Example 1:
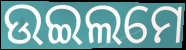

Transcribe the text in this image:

ଉଇଲମେ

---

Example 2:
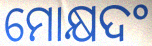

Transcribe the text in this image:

ମୋକ୍ଷଦଂ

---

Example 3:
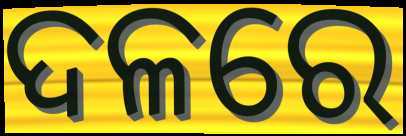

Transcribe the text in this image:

ଦଳରେ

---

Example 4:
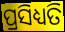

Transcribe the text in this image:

ପ୍ରସିଧ୍ୟତି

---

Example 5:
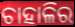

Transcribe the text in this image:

ଚାହାଳିର